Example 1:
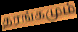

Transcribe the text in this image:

தரங்கமும்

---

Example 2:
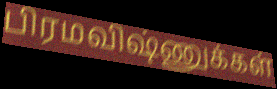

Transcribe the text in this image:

பிரமவிஷ்ணுக்கள்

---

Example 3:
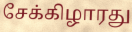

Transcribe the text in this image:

சேக்கிழாரது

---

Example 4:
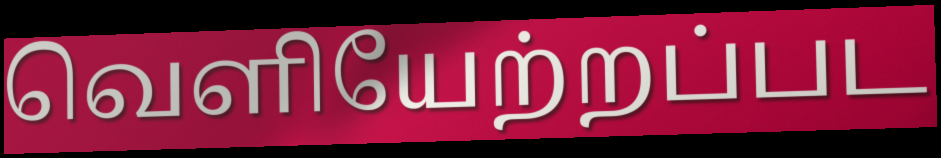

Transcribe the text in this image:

வெளியேற்றப்பட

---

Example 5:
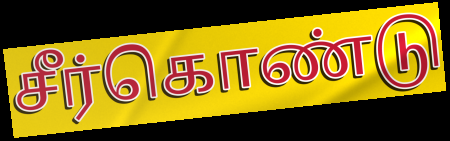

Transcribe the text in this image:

சீர்கொண்டு